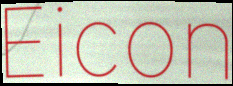
Eicon